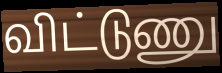
விட்டுணு